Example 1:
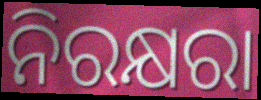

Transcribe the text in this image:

ନିରକ୍ଷରା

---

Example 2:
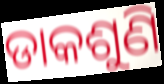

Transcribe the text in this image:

ଡାକଶୁଣି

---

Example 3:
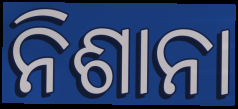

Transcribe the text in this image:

ନିଶାନା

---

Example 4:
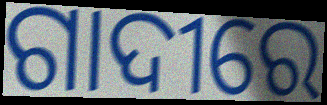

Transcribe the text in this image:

ଗାଦୀରେ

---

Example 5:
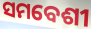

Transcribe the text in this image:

ସମବେଶୀ